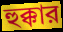
হুক্কার